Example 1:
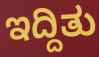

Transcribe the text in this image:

ಇದ್ದಿತು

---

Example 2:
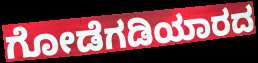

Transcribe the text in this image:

ಗೋಡೆಗಡಿಯಾರದ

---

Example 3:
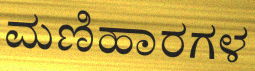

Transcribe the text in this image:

ಮಣಿಹಾರಗಳ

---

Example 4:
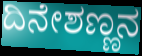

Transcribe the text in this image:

ದಿನೇಶಣ್ಣನ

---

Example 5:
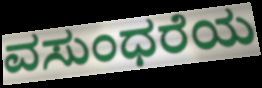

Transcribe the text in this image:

ವಸುಂಧರೆಯ